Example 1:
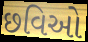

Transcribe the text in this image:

છવિઓ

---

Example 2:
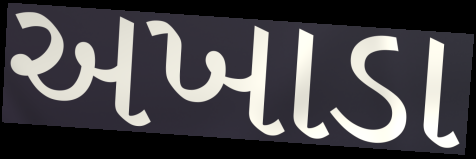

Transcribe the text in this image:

અખાડા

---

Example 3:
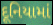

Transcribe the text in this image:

દૂનિયામાં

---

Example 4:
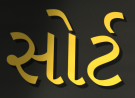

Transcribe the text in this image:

સોર્ટ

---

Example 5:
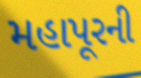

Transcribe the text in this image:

મહાપૂરની